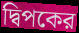
দ্বিপকের